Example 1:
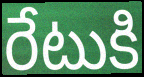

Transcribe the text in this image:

రేటుకి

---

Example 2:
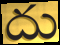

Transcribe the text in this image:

దు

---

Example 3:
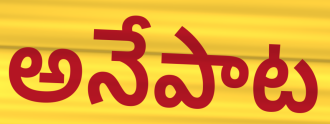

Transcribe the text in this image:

అనేపాట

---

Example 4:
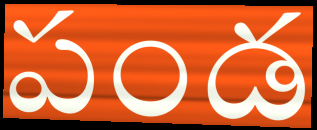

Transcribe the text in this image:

పండ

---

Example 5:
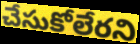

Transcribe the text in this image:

చేసుకోలేరని